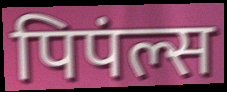
पिपंल्स